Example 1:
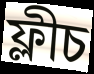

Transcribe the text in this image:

ফ্লীচ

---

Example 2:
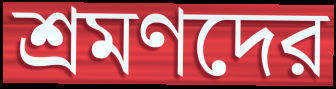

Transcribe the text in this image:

শ্রমণদের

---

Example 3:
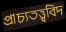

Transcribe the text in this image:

প্রাচ্যতত্ত্ববিদ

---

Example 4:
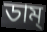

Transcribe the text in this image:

ডাম্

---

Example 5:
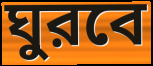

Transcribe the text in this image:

ঘুরবে